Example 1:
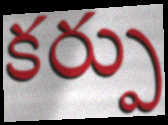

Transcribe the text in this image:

కర్పు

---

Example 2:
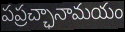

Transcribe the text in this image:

పప్రచ్ఛానామయం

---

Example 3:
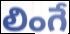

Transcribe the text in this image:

లింగే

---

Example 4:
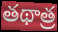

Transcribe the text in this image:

తథాత్ర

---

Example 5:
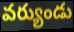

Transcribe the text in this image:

వర్యుండు